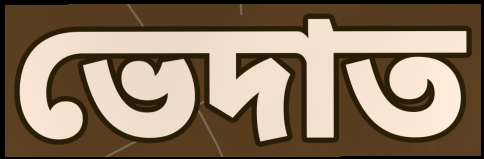
ভেদাত